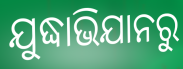
ଯୁଦ୍ଧାଭିଯାନରୁ